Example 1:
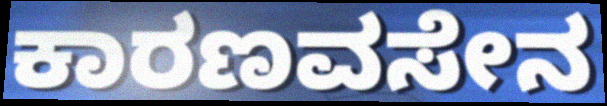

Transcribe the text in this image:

ಕಾರಣವಸೇನ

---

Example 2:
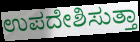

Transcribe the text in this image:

ಉಪದೇಶಿಸುತ್ತಾ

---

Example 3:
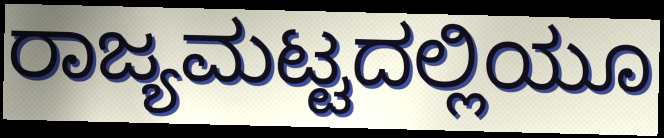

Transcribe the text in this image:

ರಾಜ್ಯಮಟ್ಟದಲ್ಲಿಯೂ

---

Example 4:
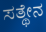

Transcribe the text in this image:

ಸತ್ಥೇನ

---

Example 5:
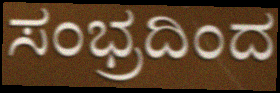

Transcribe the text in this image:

ಸಂಭ್ರದಿಂದ